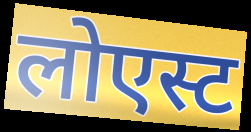
लोएस्ट